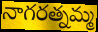
నాగరత్నమ్మ